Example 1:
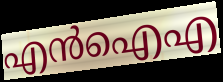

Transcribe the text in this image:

എൻഐഎ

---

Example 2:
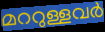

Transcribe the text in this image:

മററുള്ളവർ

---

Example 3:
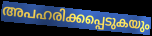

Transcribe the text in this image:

അപഹരിക്കപ്പെടുകയും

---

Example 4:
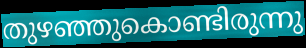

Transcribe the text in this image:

തുഴഞ്ഞുകൊണ്ടിരുന്നു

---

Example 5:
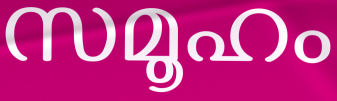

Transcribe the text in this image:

സമൂഹം